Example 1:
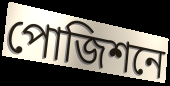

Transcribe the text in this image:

পোজিশনে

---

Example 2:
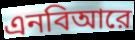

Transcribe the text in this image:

এনবিআরে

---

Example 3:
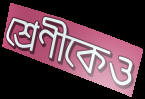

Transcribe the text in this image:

শ্রেণীকেও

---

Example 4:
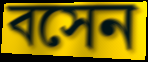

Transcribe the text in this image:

বসেন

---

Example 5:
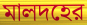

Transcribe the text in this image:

মালদহের